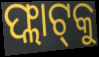
ଫ୍ଲାଟ୍‌କୁ